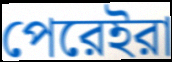
পেরেইরা